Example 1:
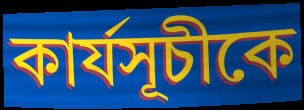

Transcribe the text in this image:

কার্যসূচীকে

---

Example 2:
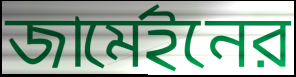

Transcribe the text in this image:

জার্মেইনের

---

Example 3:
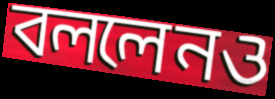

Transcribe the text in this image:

বললেনও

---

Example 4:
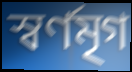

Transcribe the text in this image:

স্বর্ণমৃগ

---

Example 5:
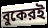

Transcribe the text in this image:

বুকেরই